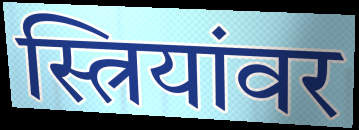
स्त्रियांवर